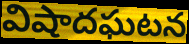
విషాదఘటన